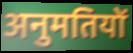
अनुमतियों